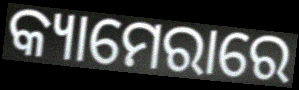
କ୍ୟାମେରାରେ